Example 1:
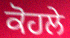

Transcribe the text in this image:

ਕੋਹਲੇ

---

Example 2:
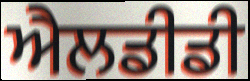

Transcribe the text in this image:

ਐਲਡੀਡੀ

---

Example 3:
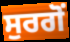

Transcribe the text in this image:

ਸੁਰਗੋਂ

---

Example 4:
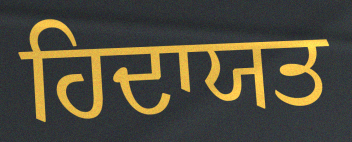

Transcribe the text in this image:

ਹਿਦਾਯਤ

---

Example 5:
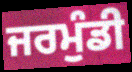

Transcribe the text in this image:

ਜਰਮੁੰਡੀ